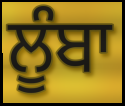
ਲੂੰਬਾ